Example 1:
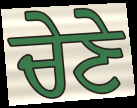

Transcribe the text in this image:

ਚੇਣੇ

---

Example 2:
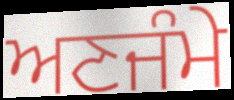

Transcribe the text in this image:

ਅਣਜੰਮੇ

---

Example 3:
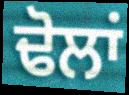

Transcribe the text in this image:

ਢੋਲਾਂ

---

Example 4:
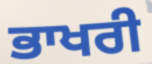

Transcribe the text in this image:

ਭਾਖਰੀ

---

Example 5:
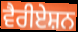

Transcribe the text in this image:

ਵੈਰੀਏਸ਼ਨ